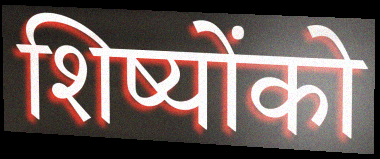
शिष्योंको